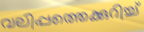
വലിപ്പത്തെക്കുറിച്ച്